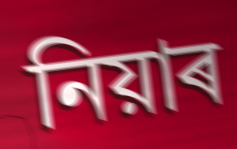
নিয়াৰ